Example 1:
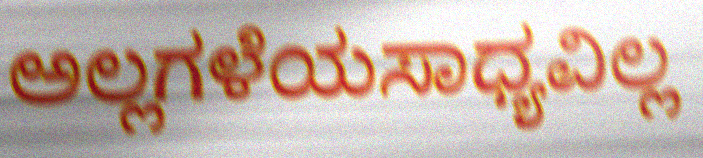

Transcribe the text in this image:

ಅಲ್ಲಗಳೆಯಸಾಧ್ಯವಿಲ್ಲ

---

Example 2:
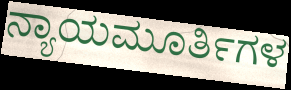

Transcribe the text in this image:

ನ್ಯಾಯಮೂರ್ತಿಗಳ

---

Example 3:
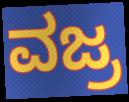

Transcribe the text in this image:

ವಜ್ರ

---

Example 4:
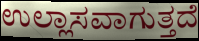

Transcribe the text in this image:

ಉಲ್ಲಾಸವಾಗುತ್ತದೆ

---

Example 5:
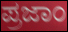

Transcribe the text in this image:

ಪ್ರಜಾಂ